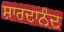
ਸ਼ਾਰਦਾਨੰਦ